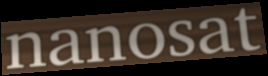
nanosat